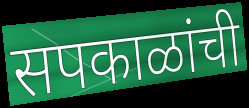
सपकाळांची